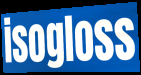
isogloss